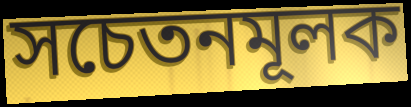
সচেতনমূলক